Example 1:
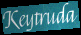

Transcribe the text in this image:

Keytruda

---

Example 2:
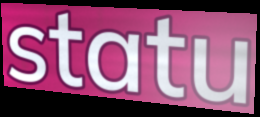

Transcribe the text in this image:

statu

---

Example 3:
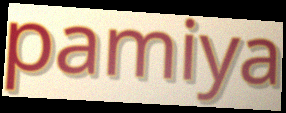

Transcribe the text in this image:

pamiya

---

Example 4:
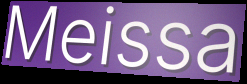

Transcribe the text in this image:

Meissa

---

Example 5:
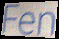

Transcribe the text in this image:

Fen